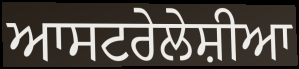
ਆਸਟਰੇਲੇਸ਼ੀਆ